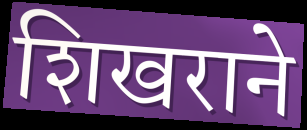
शिखराने